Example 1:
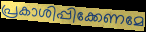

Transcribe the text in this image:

പ്രകാശിപ്പിക്കേണമേ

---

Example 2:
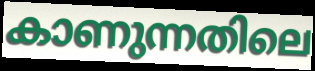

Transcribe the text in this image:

കാണുന്നതിലെ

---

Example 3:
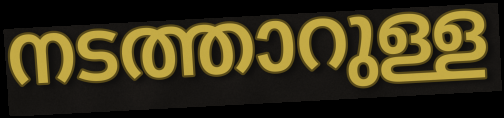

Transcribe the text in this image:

നടത്താറുള്ള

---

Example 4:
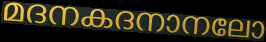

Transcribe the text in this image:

മദനകദനാനലോ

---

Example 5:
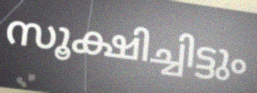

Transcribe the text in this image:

സൂക്ഷിച്ചിട്ടും